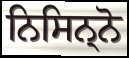
ਨਿਸਿਨ੍ਨੋ